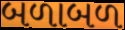
બળાબળ